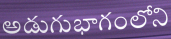
అడుగుభాగంలోని